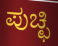
ಪುಚ್ಛಿ